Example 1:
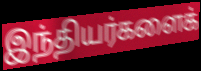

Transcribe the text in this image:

இந்தியர்களைக்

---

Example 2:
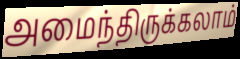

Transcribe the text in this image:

அமைந்திருக்கலாம்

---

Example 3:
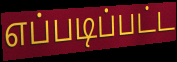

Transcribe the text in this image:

எப்படிப்பட்ட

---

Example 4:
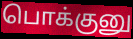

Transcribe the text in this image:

பொக்குனு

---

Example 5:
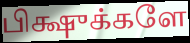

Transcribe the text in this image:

பிக்ஷுக்களே